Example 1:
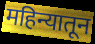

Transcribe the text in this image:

महिन्यातून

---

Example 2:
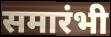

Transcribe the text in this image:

समारंभी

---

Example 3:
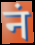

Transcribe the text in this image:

नं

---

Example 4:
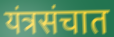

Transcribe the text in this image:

यंत्रसंचात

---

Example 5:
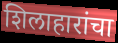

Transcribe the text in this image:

शिलाहारांचा